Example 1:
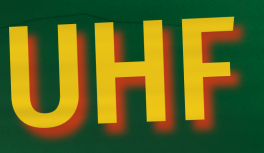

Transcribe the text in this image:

UHF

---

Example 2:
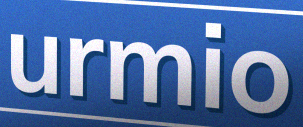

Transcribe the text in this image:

urmio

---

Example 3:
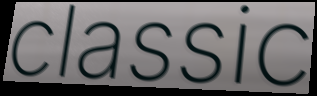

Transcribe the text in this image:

classic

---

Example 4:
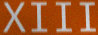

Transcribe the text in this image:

XIII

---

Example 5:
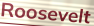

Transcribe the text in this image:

Roosevelt